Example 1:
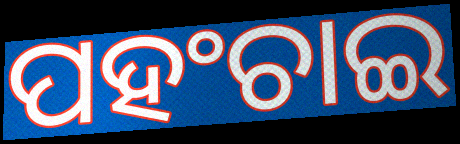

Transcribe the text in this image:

ପହଂଚାଇ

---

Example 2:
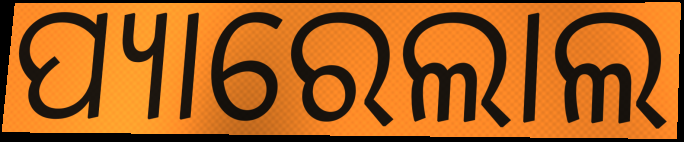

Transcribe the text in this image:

ପ୍ୟାରେଲାଲ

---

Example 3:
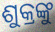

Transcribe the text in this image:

ଶୁକ୍ରଙ୍କୁ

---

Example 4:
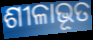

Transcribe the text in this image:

ଶୀଳାଭୂତ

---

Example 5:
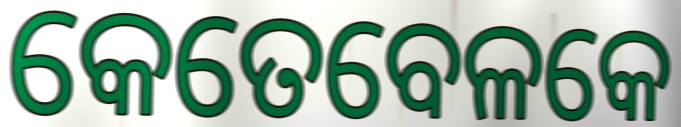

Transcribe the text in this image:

କେତେବେଳକେ